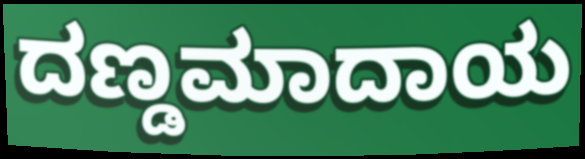
ದಣ್ಡಮಾದಾಯ